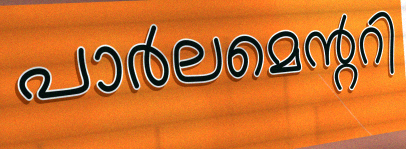
പാർലമെന്ററി